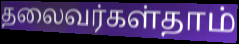
தலைவர்கள்தாம்